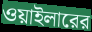
ওয়াইলারের